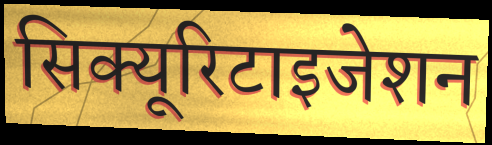
सिक्यूरिटाइजेशन